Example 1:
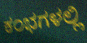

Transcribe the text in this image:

ಕಂಭಗಳಲ್ಲಿ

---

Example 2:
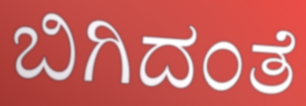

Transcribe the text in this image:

ಬಿಗಿದಂತೆ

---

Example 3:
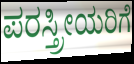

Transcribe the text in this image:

ಪರಸ್ತ್ರೀಯರಿಗೆ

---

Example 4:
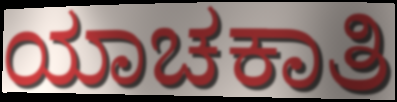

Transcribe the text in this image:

ಯಾಚಕಾತಿ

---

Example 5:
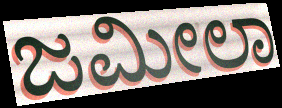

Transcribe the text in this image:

ಜಮೀಲಾ